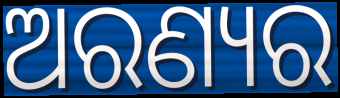
ଅରଣ୍ୟର